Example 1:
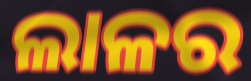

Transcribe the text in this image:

ଲାଳର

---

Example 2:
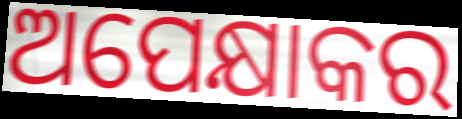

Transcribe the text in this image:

ଅପେକ୍ଷାକର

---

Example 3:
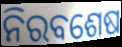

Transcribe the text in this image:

ନିରବଶେଷ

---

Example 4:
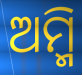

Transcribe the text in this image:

ଅମ୍ମି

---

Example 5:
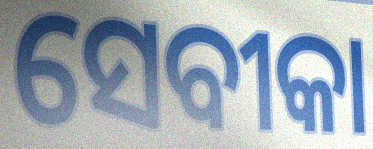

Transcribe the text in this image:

ସେବୀକା